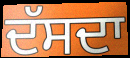
ਦੱਸਦਾ